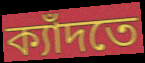
ক্যাঁদতে